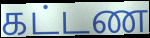
கட்டண